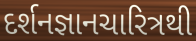
દર્શનજ્ઞાનચારિત્રથી